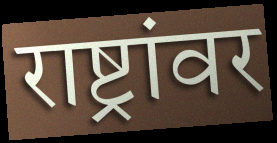
राष्ट्रांवर